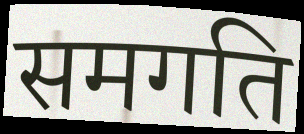
समगति